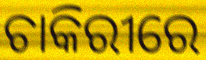
ଚାକିରୀରେ